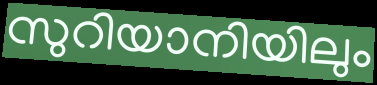
സുറിയാനിയിലും